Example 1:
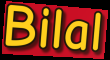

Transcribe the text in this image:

Bilal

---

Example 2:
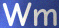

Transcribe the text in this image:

Wm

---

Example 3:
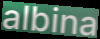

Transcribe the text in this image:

albina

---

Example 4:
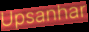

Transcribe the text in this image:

Upsanhar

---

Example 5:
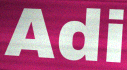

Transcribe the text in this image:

Adi